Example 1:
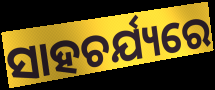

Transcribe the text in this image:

ସାହଚର୍ଯ୍ୟରେ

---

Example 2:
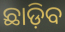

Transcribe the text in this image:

ଛାଡ଼ିବ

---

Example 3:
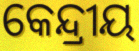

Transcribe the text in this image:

କେନ୍ଦ୍ରୀୟ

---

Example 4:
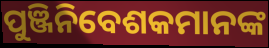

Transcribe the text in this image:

ପୁଞ୍ଜିନିବେଶକମାନଙ୍କ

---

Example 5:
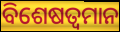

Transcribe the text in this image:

ବିଶେଷତ୍ଵମାନ